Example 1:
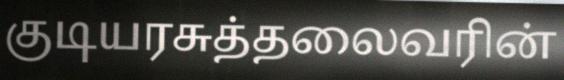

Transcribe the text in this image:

குடியரசுத்தலைவரின்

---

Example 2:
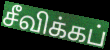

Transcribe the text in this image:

சீவிக்கப்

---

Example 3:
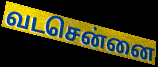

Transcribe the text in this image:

வடசென்னை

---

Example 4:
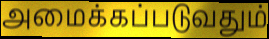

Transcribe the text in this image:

அமைக்கப்படுவதும்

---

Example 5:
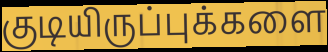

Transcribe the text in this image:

குடியிருப்புக்களை